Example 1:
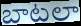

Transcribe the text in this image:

బాటలా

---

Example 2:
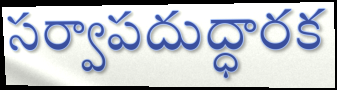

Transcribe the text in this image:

సర్వాపదుద్ధారక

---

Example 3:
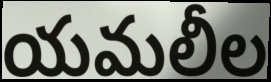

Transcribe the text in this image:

యమలీల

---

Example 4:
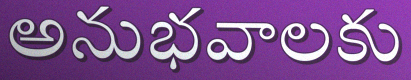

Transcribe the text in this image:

అనుభవాలకు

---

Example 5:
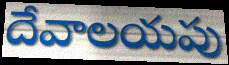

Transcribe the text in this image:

దేవాలయపు